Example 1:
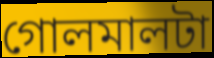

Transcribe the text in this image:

গোলমালটা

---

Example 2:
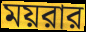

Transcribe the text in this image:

ময়রার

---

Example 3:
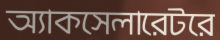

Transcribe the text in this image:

অ্যাকসেলারেটরে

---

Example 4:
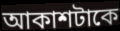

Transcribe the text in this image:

আকাশটাকে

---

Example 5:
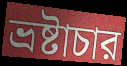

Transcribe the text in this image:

ভ্রষ্টাচার